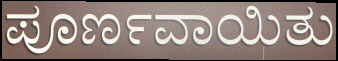
ಪೂರ್ಣವಾಯಿತು